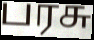
பரசு